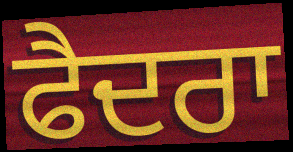
ਫੈਦਰਾ